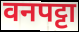
वनपट्टा